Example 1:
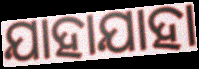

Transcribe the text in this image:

ଯାହାଯାହା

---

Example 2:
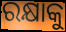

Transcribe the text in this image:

ରକ୍ଷାକୁ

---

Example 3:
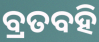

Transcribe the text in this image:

ବ୍ରତବହି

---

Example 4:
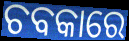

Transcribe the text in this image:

ଚବକାରେ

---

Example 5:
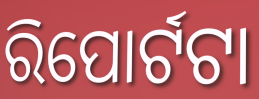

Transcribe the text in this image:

ରିପୋର୍ଟଟା